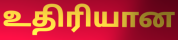
உதிரியான